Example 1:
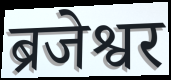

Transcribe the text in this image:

ब्रजेश्वर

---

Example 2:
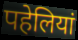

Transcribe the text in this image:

पहेलियां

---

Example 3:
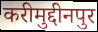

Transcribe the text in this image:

करीमुद्दीनपुर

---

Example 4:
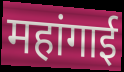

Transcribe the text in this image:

महांगाई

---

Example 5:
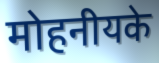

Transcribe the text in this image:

मोहनीयके